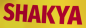
SHAKYA